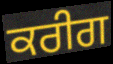
ਕਰੀਗ